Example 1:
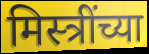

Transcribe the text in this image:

मिस्त्रींच्या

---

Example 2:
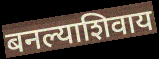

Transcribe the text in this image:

बनल्याशिवाय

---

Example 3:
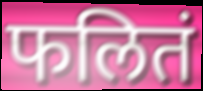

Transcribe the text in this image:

फलितं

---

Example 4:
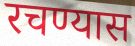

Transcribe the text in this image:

रचण्यास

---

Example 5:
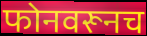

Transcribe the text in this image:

फोनवरूनच